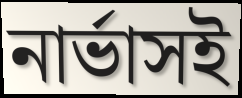
নার্ভাসই